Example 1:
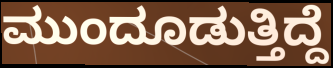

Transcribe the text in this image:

ಮುಂದೂಡುತ್ತಿದ್ದೆ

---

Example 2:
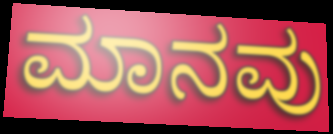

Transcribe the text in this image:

ಮಾನವು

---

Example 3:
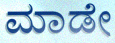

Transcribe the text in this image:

ಮಾಡೇ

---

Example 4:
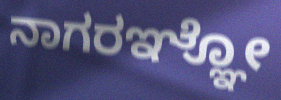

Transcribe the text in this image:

ನಾಗರಞ್ಞೋ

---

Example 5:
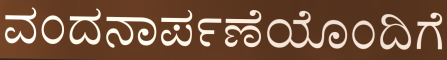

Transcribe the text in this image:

ವಂದನಾರ್ಪಣೆಯೊಂದಿಗೆ